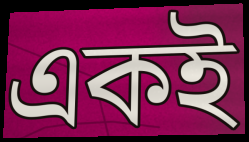
একই